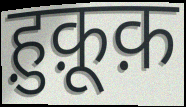
ह़ुक़ूक़